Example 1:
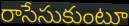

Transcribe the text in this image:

రాసేసుకుంటూ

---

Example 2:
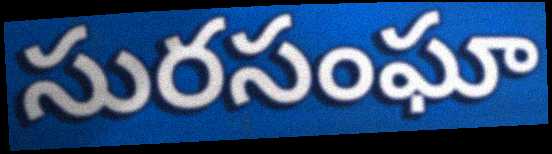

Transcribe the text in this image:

సురసంఘా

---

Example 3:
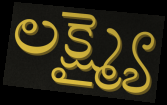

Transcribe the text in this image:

లక్ష్మ్యై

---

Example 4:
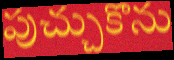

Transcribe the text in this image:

పుచ్చుకొను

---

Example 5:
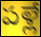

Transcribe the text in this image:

పళ్లే